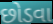
છોડવા